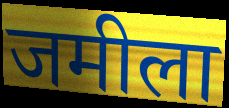
जमीला